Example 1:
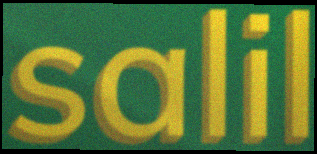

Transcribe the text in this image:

salil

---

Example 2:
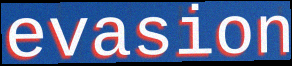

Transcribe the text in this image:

evasion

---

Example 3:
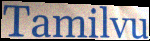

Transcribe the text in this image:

Tamilvu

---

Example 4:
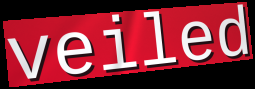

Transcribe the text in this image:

veiled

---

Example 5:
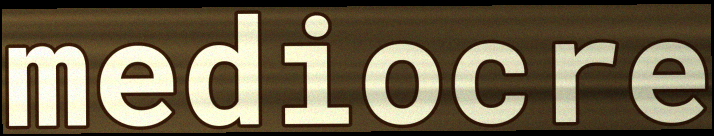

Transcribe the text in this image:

mediocre